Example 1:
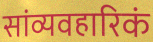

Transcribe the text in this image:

सांव्यवहारिकं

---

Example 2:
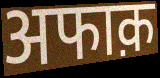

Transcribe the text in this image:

अफाक़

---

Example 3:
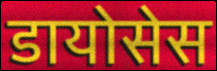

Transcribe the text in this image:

डायोसेस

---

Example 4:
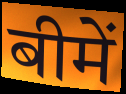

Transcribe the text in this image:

बीमें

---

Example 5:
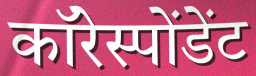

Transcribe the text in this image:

कॉरेस्पोंडेंट